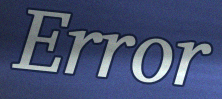
Error